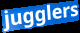
jugglers